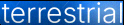
terrestrial